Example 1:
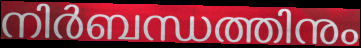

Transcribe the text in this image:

നിർബന്ധത്തിനും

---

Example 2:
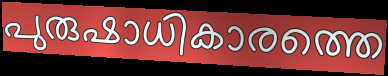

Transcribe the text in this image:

പുരുഷാധികാരത്തെ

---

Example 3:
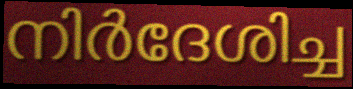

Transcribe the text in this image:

നിർദേശിച്ച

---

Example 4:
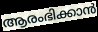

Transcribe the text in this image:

ആരംഭിക്കാൻ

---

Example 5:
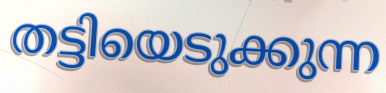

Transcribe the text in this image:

തട്ടിയെടുക്കുന്ന